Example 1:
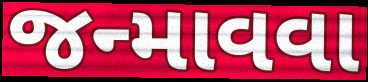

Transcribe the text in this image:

જન્માવવા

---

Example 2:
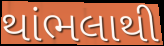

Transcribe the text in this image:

થાંભલાથી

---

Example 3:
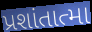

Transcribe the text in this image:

પ્રશાંતાત્મા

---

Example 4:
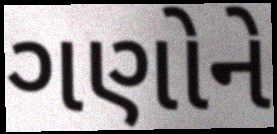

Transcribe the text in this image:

ગણોને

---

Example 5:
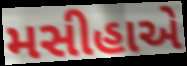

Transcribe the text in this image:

મસીહાએ